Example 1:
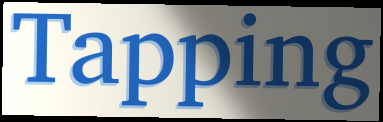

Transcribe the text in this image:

Tapping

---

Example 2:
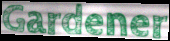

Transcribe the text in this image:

Gardener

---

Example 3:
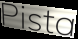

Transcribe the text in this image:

Pista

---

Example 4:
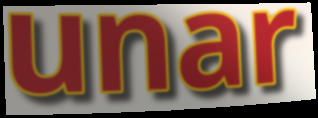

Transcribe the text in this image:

unar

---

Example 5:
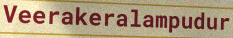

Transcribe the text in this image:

Veerakeralampudur